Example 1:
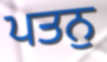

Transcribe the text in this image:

ਪਤਨੁ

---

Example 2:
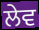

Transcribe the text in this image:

ਲੇਵ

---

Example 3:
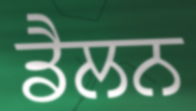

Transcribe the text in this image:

ਡੈਲਨ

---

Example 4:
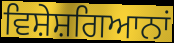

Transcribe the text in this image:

ਵਿਸ਼ੇਸ਼ਗਿਆਨਾਂ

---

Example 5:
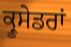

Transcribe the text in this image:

ਕ੍ਰੂਸੇਡਰਾਂ